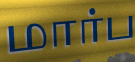
மார்ப